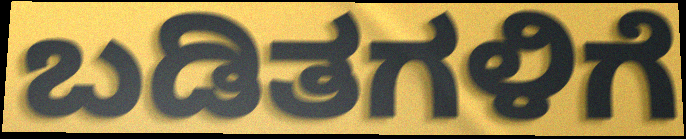
ಬಡಿತಗಳಿಗೆ